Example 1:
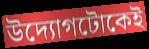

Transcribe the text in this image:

উদ্যোগটোকেই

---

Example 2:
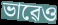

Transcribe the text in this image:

ভাৱেও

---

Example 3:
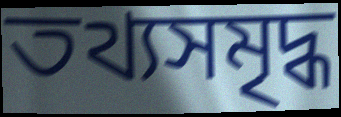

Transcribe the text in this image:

তথ্যসমৃদ্ধ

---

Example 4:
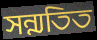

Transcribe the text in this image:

সন্মতিত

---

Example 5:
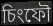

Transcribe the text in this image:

চিংফৌ